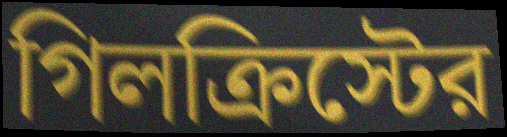
গিলক্রিস্টের